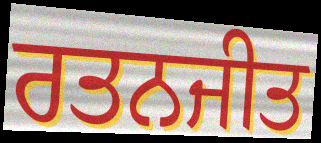
ਰਤਨਜੀਤ